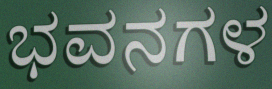
ಭವನಗಳ